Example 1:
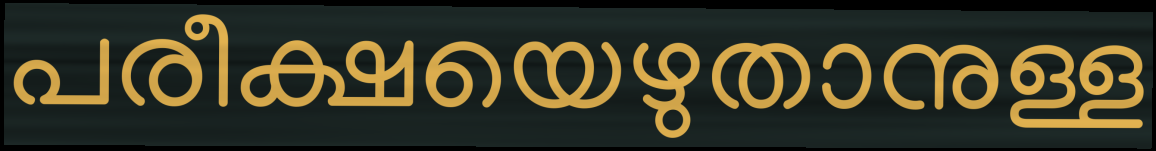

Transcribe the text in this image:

പരീക്ഷയെഴുതാനുള്ള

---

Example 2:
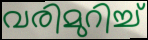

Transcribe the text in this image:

വരിമുറിച്ച്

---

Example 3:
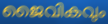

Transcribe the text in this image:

ജൈവികവും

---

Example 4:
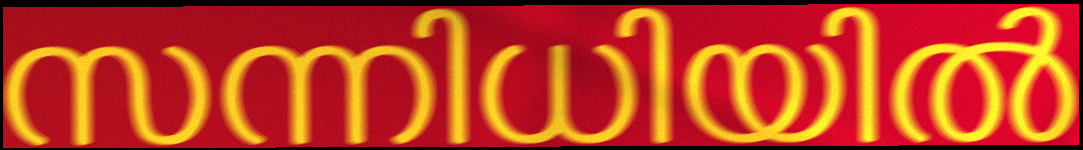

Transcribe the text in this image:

സന്നിധിയിൽ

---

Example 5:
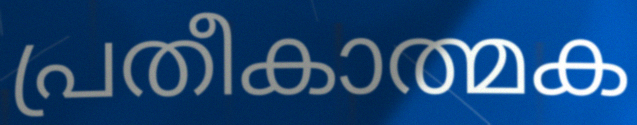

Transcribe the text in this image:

പ്രതീകാത്മക